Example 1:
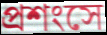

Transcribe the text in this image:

প্রশংসে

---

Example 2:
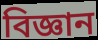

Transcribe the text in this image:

বিজ্ঞান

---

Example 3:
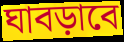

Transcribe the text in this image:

ঘাবড়াবে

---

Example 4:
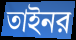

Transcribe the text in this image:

তাইনর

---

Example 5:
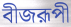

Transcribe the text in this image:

বীজরূপী